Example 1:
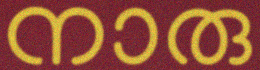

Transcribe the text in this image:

നാരു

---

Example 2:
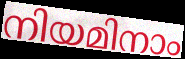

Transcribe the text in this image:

നിയമിനാം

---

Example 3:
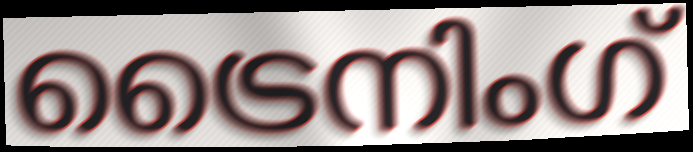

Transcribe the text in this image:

ട്രൈനിംഗ്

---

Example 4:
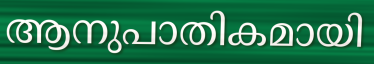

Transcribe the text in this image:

ആനുപാതികമായി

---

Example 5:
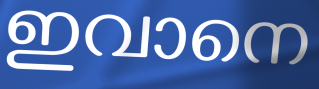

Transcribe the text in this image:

ഇവാനെ